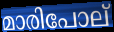
മാരിപോല്